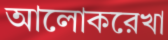
আলোকরেখা